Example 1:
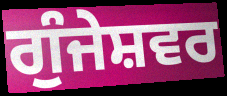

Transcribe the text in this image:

ਗੁੰਜੇਸ਼ਵਰ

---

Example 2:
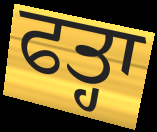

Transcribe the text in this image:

ਫਤ੍ਹਾ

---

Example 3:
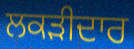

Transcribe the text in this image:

ਲਕੜੀਦਾਰ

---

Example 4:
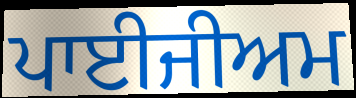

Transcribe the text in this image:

ਪਾਈਜੀਅਮ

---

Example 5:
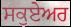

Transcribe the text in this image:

ਸਕੁਏਅਰ